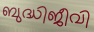
ബുദ്ധിജീവി